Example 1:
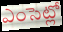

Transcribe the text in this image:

ఎంసెట్లో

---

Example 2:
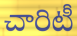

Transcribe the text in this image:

చారిటీ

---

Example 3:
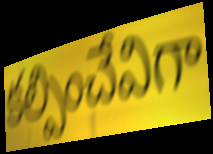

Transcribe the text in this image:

కల్పించేవిగా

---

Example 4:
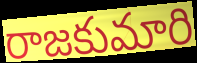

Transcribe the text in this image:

రాజకుమారి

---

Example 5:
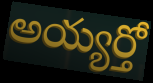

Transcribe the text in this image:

అయ్యర్తో